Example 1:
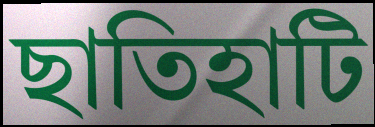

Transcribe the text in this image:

ছাতিহাটি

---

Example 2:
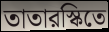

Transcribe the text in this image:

তাতারস্কিতে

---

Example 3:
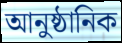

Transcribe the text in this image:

আনুষ্ঠানিক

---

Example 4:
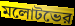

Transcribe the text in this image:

মলোটভের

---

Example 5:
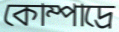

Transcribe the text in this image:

কোম্পাদ্রে